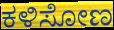
ಕಳಿಸೋಣ